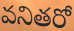
వనితరో